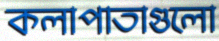
কলাপাতাগুলো